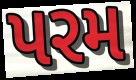
પરમ